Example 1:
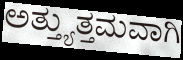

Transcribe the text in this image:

ಅತ್ತ್ಯುತ್ತಮವಾಗಿ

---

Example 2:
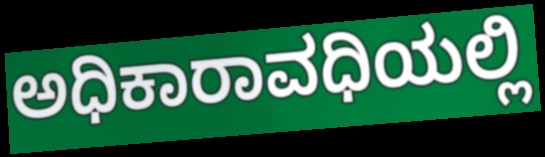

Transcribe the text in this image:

ಅಧಿಕಾರಾವಧಿಯಲ್ಲಿ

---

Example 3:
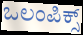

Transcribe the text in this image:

ಒಲಂಪಿಕ್ಸ್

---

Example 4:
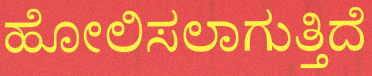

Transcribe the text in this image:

ಹೋಲಿಸಲಾಗುತ್ತಿದೆ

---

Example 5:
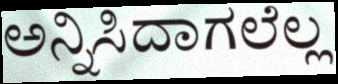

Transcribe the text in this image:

ಅನ್ನಿಸಿದಾಗಲೆಲ್ಲ